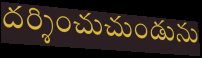
దర్శించుచుండును